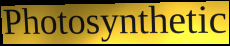
Photosynthetic